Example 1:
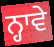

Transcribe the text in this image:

ਨ੍ਹਾਵੇ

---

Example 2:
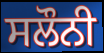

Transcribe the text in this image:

ਸਲੌਨੀ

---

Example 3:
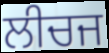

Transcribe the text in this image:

ਲੀਚਜ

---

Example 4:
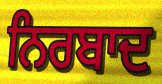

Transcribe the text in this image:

ਨਿਰਬਾਦ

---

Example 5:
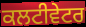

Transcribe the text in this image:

ਕਲਟੀਵੇਟਰ